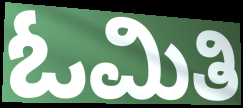
ಓಮಿತಿ